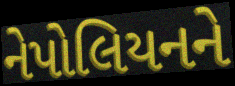
નેપોલિયનને